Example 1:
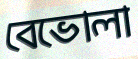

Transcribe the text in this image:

বেভোলা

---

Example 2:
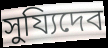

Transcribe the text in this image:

সুয্যিদেব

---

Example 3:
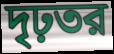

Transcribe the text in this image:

দৃঢ়তর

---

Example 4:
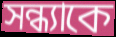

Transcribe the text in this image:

সন্ধ্যাকে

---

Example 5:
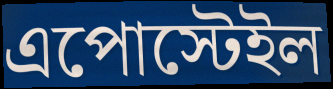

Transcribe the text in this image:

এপোস্টেইল